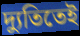
দ্যুতিতেই